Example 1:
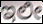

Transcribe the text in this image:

ಇಲೀ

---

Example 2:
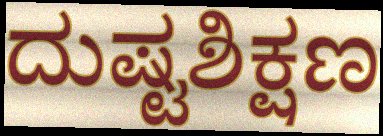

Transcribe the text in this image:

ದುಷ್ಟಶಿಕ್ಷಣ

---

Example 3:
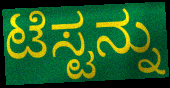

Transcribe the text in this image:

ಟೆಸ್ಟನ್ನು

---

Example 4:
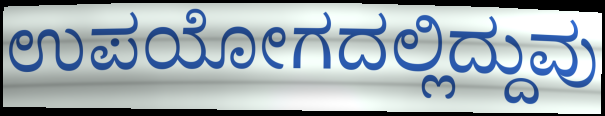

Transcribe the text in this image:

ಉಪಯೋಗದಲ್ಲಿದ್ದುವು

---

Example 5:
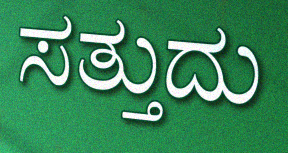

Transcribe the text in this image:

ಸತ್ತುದು